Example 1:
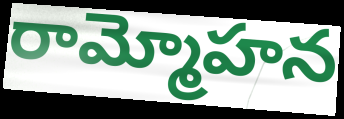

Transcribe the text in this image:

రామ్మోహన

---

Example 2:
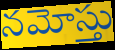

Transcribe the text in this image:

నమోస్తు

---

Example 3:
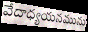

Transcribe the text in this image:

వేదాధ్యయనమును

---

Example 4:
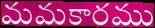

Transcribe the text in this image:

మమకారము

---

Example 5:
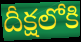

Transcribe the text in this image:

దీక్షలోకి